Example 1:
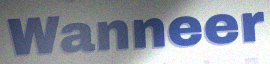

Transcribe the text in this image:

Wanneer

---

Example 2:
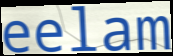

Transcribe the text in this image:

eelam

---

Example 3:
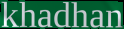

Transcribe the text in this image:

khadhan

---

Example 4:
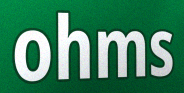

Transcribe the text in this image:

ohms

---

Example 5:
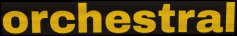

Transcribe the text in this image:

orchestral